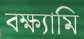
বক্ষ্যামি